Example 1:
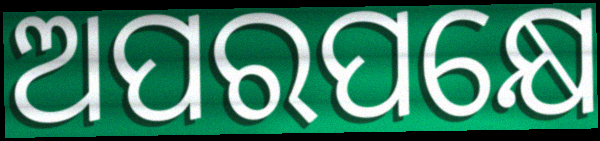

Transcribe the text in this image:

ଅପରପକ୍ଷେ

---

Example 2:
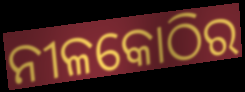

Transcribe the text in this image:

ନୀଳକୋଠିର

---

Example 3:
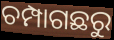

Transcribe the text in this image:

ଚମ୍ପାଗଛରୁ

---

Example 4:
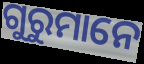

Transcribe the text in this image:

ଗୁରୁମାନେ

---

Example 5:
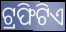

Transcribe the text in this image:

ଟ୍ରଫିଟିଏ